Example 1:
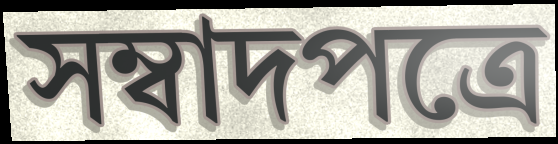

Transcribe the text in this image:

সম্বাদপত্রে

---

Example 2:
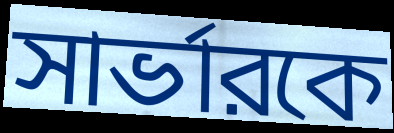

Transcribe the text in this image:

সার্ভারকে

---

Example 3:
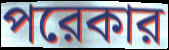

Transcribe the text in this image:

পরেকার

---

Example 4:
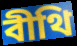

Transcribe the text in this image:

বীথি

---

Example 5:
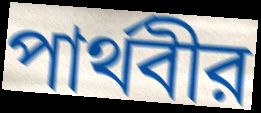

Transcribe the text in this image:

পার্থবীর